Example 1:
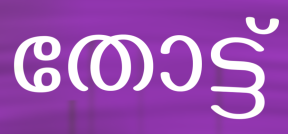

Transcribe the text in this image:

തോട്ട്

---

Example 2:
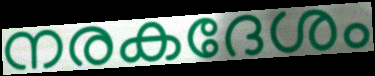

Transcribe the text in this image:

നരകദേശം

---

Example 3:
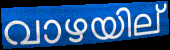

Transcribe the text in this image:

വാഴയില്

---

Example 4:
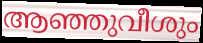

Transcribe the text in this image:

ആഞ്ഞുവീശും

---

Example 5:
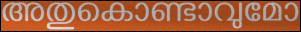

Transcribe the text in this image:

അതുകൊണ്ടാവുമോ